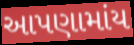
આપણામાંય